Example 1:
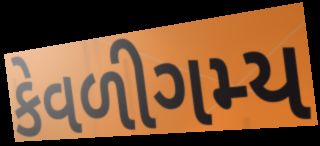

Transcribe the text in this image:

કેવળીગમ્ય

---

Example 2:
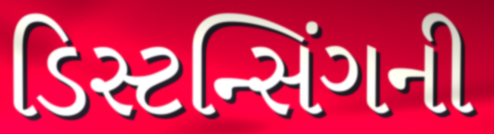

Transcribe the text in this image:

ડિસ્ટન્સિંગની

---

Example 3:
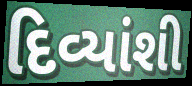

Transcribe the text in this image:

દિવ્યાંશી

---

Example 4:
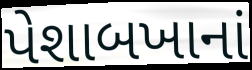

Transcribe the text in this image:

પેશાબખાનાં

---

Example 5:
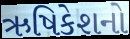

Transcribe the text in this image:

ઋષિકેશનો